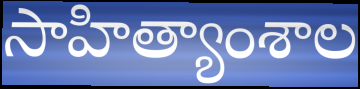
సాహిత్యాంశాల